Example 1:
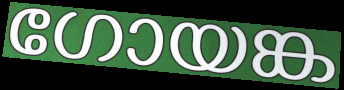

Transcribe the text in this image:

ഗോയങ്ക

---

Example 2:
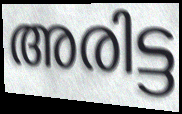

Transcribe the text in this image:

അരിട്ട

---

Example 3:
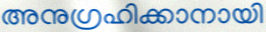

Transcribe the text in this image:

അനുഗ്രഹിക്കാനായി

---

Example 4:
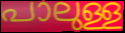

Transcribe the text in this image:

പാലുള്ള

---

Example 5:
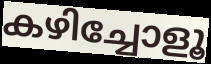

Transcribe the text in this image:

കഴിച്ചോളൂ